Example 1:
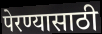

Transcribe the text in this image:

पेरण्यासाठी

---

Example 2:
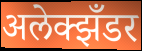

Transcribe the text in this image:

अलेक्झँडर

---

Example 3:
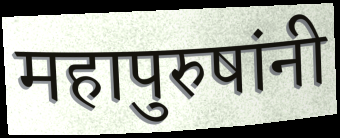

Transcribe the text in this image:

महापुरुषांनी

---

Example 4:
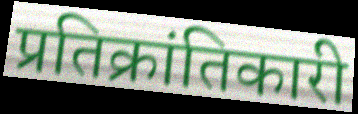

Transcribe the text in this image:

प्रतिक्रांतिकारी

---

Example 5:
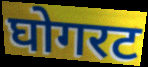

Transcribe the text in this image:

घोगरट